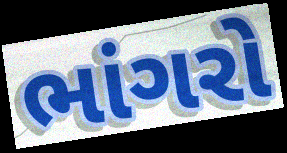
ભાંગરો